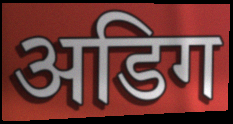
अडिग